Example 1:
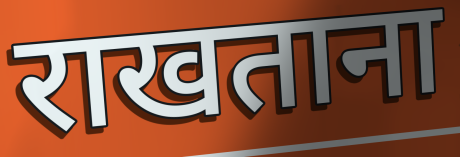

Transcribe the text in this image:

राखताना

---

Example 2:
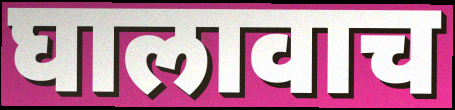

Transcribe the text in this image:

घालावाच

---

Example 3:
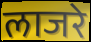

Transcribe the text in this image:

लाजरे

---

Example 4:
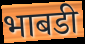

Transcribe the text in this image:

भाबडी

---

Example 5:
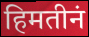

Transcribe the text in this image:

हिमतीनं